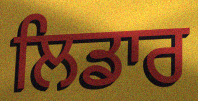
ਲਿਡਾਰ